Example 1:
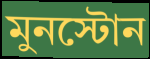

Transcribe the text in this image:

মুনস্টোন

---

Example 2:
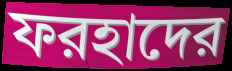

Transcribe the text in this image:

ফরহাদের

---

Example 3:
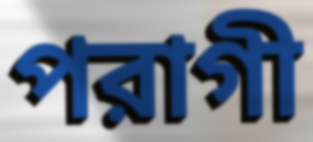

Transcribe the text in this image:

পরাগী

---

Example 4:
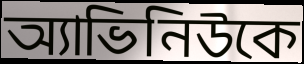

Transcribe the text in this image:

অ্যাভিনিউকে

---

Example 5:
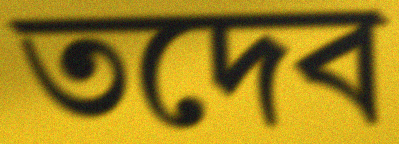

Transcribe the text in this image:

তদেব